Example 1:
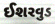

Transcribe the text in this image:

ઈશરવુડ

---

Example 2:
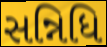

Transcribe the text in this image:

સન્નિધિ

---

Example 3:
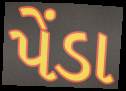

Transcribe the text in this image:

પેંડા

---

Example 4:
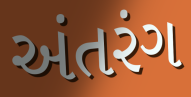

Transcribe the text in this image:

અંતરંગ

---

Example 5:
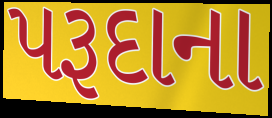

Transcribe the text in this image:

પરૂદાના